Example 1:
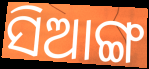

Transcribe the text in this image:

ସିଆଙ୍ଗ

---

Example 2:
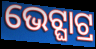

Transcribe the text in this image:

ଭେଟ୍ଘାଟ୍ର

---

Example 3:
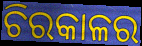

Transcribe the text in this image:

ଚିରକାଳର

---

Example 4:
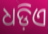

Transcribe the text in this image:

ଧଡ଼ିଏ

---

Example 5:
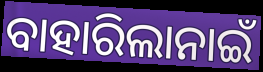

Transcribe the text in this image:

ବାହାରିଲାନାଇଁ